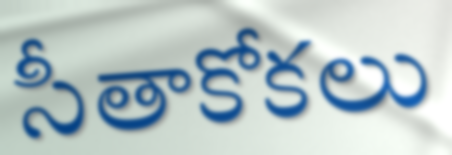
సీతాకోకలు